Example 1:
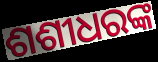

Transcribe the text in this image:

ଶଶୀଧରଙ୍କ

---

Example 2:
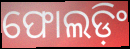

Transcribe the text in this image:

ଫୋଲଡ଼ିଂ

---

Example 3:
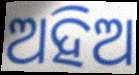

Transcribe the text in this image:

ଅହିଅ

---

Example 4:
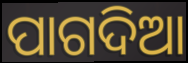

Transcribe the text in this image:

ପାଗଦିଆ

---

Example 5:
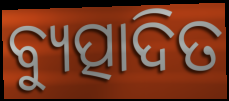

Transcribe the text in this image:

ବ୍ୟୁତ୍ପାଦିତ